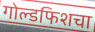
गोल्डफिशचा